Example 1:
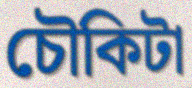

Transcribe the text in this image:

চৌকিটা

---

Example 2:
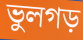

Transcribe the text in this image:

ভুলগড়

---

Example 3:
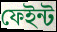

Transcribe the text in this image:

ফেইন্ট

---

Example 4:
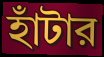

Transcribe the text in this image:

হাঁটার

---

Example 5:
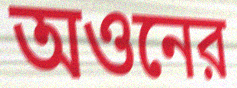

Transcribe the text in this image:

অওনের